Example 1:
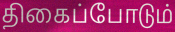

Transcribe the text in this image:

திகைப்போடும்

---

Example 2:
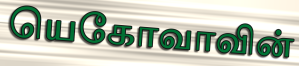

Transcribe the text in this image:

யெகோவாவின்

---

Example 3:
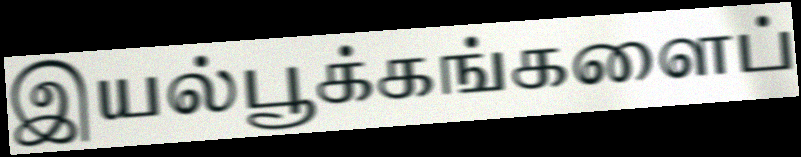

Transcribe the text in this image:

இயல்பூக்கங்களைப்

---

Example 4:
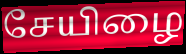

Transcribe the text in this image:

சேயிழை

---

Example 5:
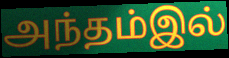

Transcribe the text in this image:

அந்தம்இல்